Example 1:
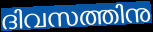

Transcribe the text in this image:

ദിവസത്തിനു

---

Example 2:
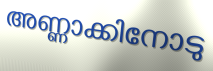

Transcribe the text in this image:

അണ്ണാക്കിനോടു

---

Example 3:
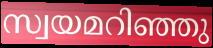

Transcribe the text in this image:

സ്വയമറിഞ്ഞു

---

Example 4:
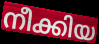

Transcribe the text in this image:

നീക്കിയ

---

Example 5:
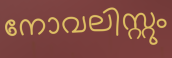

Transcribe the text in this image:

നോവലിസ്റ്റും